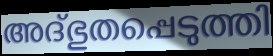
അദ്ഭുതപ്പെടുത്തി